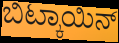
ಬಿಟ್ಕಾಯಿನ್